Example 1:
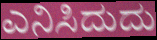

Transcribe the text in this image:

ಎನಿಸಿದುದು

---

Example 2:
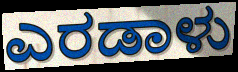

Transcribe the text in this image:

ಎರಡಾಳು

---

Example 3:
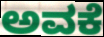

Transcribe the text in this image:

ಅವಕೆ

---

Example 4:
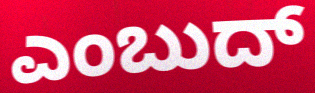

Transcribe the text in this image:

ಎಂಬುದ್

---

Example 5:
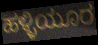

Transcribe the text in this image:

ಹಳ್ಳಿಯೂರ